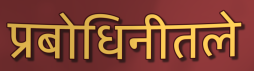
प्रबोधिनीतले